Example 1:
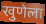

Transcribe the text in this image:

खुणेला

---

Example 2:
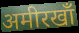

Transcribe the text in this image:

अमीरखाँ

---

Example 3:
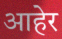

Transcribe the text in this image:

आहेर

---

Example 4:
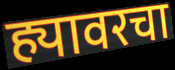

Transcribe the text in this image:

ह्यावरचा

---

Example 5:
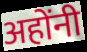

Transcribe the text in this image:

अहोंनी